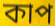
কাপ